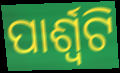
ପାର୍ଶ୍ଵଟି